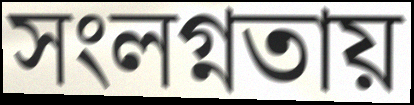
সংলগ্নতায়